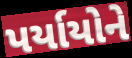
પર્યાયોને